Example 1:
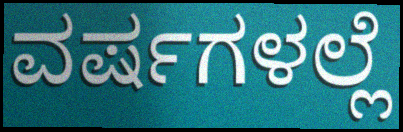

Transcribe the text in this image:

ವರ್ಷಗಳಲ್ಲೆ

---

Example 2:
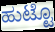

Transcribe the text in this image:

ಹುಟ್ಟೊ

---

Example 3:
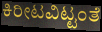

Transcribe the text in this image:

ಕಿರೀಟವಿಟ್ಟಂತೆ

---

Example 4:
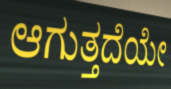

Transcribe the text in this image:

ಆಗುತ್ತದೆಯೇ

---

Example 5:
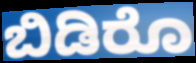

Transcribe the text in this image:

ಬಿಡಿರೊ